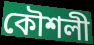
কৌশলী